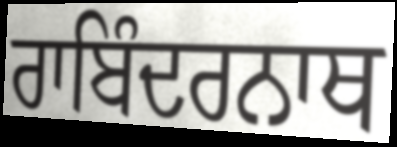
ਰਾਬਿੰਦਰਨਾਥ